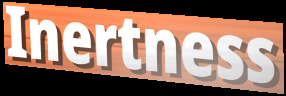
Inertness